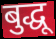
बुद्धू